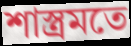
শাস্ত্রমতে